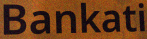
Bankati